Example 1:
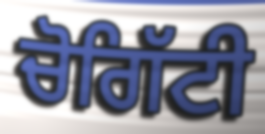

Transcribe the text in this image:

ਚੋਗਿੱਟੀ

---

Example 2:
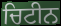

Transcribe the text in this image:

ਚਿਟੀਨ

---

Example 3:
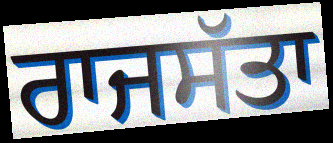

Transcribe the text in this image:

ਰਾਜਸੱਤਾ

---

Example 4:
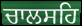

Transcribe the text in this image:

ਚਾਲਸਹਿ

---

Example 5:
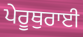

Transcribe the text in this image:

ਪੇਰੂਥੁਰਾਈ